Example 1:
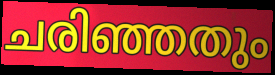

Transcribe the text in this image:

ചരിഞ്ഞതും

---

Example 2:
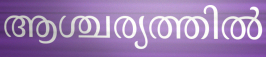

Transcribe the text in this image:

ആശ്ചര്യത്തിൽ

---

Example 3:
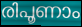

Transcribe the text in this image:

രിപൂണാം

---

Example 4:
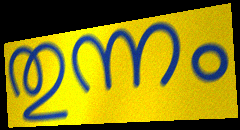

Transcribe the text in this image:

തുന്നം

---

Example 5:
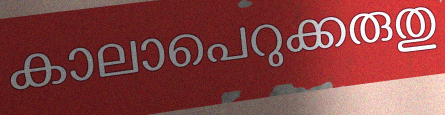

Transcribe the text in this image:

കാലാപെറുക്കരുതു